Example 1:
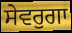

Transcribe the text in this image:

ਸੇਵਰੁਗਾ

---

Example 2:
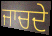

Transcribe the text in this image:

ਜਾਚਦੇ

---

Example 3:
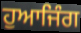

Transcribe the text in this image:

ਹੁਆਜਿੰਗ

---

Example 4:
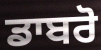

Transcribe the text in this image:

ਡਾਬਰੋ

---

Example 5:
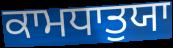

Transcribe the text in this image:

ਕਾਮਧਾਤੁਯਾ